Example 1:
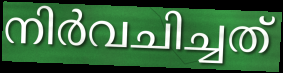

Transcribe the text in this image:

നിർവചിച്ചത്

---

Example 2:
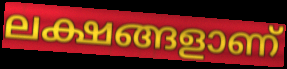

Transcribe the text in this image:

ലക്ഷങ്ങളാണ്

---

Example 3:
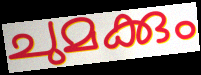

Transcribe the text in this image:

ചുമക്കും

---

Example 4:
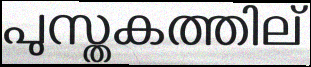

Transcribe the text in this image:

പുസ്തകത്തില്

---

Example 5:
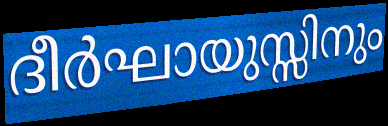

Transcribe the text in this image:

ദീർഘായുസ്സിനും